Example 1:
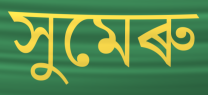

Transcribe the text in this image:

সুমেৰু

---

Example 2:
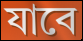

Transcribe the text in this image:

যাবে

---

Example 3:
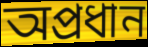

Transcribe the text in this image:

অপ্ৰধান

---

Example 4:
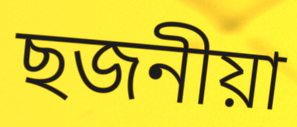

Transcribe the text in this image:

ছজনীয়া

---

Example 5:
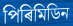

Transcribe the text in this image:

পিৰিমিডিন